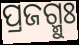
ପ୍ରଜଗ୍ମୁଃ